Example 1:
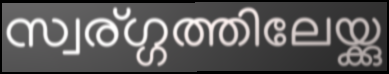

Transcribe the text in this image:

സ്വര്ഗ്ഗത്തിലേയ്ക്കു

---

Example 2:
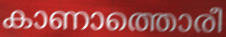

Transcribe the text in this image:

കാണാത്തൊരീ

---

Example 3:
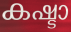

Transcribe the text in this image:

കഷ്ടാ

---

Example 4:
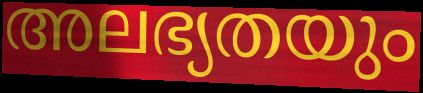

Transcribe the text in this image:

അലഭ്യതയും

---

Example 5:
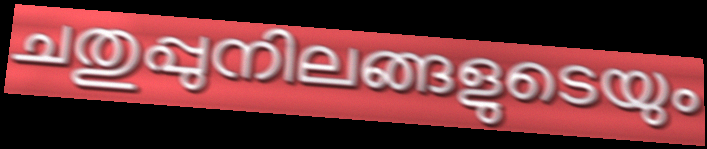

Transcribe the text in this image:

ചതുപ്പുനിലങ്ങളുടെയും